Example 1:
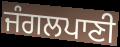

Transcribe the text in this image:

ਜੰਗਲਪਾਣੀ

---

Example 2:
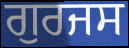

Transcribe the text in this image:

ਗੁਰਜਸ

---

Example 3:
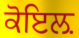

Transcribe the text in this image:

ਕੋਇਲ਼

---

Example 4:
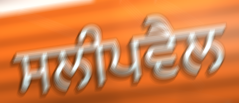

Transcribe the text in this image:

ਸਲੀਪਵੈਲ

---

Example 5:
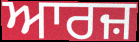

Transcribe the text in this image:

ਆਰਜ਼